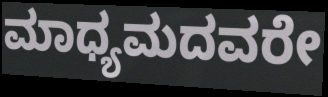
ಮಾಧ್ಯಮದವರೇ